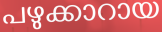
പഴുക്കാറായ